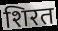
शिरत